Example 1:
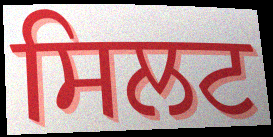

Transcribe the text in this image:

ਸਿਲਟ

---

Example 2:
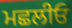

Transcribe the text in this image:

ਮਛਲੀਓ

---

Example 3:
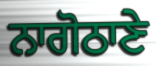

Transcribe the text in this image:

ਨਾਗੋਠਾਣੇ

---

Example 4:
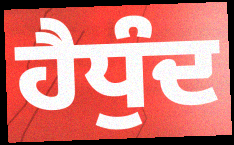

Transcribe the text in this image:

ਹੈਧੁੰਦ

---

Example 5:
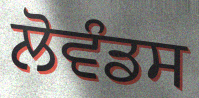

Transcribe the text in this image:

ਲੋਵੰਡਸ